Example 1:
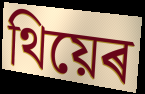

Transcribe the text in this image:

থিয়েৰ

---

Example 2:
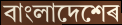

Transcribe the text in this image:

বাংলাদেশেৰ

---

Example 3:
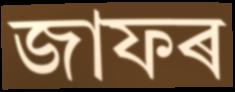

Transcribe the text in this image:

জাফৰ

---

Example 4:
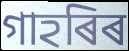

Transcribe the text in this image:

গাহৰিৰ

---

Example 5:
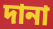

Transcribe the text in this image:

দানা